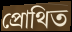
প্ৰোথিত